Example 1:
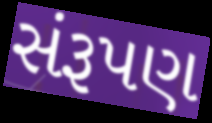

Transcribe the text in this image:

સંરૂપણ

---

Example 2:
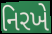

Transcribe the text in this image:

નિરખે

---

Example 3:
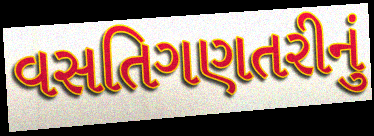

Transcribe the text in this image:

વસતિગણતરીનું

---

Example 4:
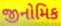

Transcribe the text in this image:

જીનોમિક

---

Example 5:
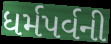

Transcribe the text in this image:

ધર્મપર્વની